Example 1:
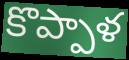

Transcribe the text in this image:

కొప్పాళ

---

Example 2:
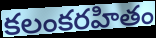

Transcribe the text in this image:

కలంకరహితం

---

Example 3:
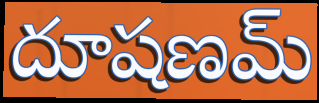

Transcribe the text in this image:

దూషణమ్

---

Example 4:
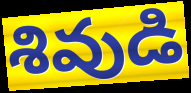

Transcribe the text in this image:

శివుడి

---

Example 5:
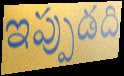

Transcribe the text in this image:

ఇప్పుడది